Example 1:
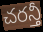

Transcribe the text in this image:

చరన్తీ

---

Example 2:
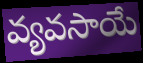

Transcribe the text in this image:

వ్యవసాయే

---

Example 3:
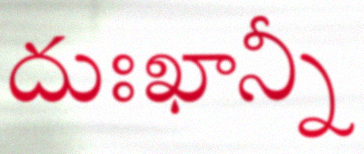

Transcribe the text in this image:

దుఃఖాన్నీ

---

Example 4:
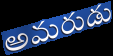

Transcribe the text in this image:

అమరుడు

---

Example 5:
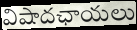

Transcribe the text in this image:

విషాదఛాయలు